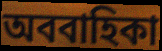
অববাহিকা